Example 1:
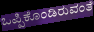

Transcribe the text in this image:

ಒಪ್ಪಿಕೊಂಡಿರುವಂತೆ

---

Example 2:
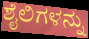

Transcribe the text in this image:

ಶೈಲಿಗಳನ್ನು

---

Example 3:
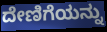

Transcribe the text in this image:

ದೇಣಿಗೆಯನ್ನು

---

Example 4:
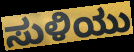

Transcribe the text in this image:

ಸುಳಿಯು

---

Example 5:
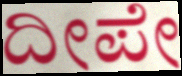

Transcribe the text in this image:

ದೀಪೇ